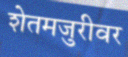
शेतमजुरीवर